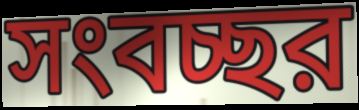
সংবচ্ছর